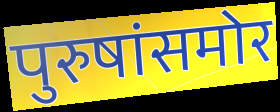
पुरुषांसमोर